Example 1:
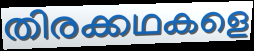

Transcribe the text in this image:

തിരക്കഥകളെ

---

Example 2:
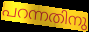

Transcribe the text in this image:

പറന്നതിനു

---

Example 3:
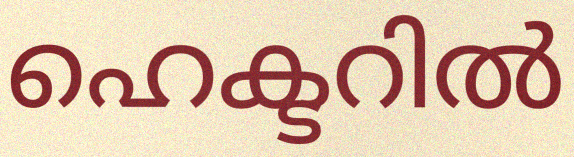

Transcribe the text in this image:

ഹെക്ടറിൽ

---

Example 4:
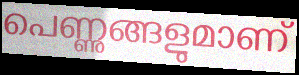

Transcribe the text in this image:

പെണ്ണുങ്ങളുമാണ്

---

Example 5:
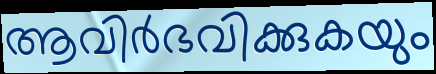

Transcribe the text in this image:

ആവിർഭവിക്കുകയും